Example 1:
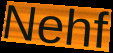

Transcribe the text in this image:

Nehf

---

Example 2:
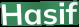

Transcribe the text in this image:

Hasif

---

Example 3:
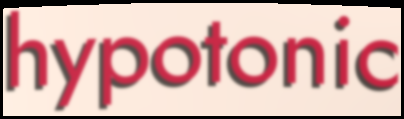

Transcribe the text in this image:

hypotonic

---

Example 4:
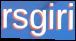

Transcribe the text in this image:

rsgiri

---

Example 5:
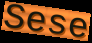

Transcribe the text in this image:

Sese